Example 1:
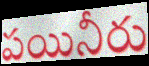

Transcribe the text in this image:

పయినీరు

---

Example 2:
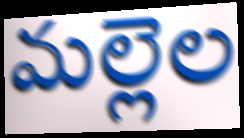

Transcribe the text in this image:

మల్లెల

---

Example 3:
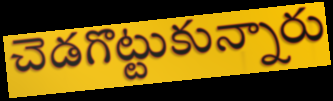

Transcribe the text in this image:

చెడగొట్టుకున్నారు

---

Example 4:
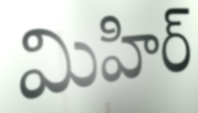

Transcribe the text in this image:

మిహిర్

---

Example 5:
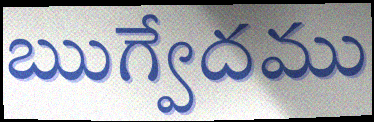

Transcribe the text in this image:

ఋగ్వేదము